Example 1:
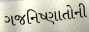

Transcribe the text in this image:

ગજનિષ્ણાતોની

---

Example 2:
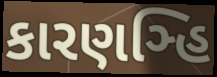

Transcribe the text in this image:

કારણઞ્હિ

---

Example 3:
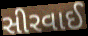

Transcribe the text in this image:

સીરવાઈ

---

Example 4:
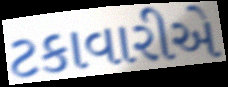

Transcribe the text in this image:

ટકાવારીએ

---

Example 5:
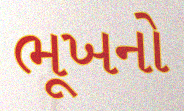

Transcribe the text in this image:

ભૂખનો